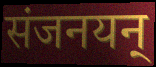
संजनयन्